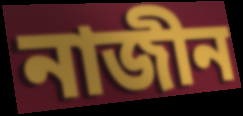
নাজীন